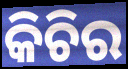
କିଚିର